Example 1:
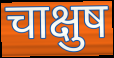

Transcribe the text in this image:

चाक्षुष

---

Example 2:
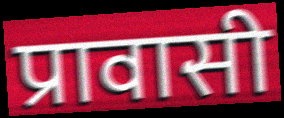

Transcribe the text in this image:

प्रावासी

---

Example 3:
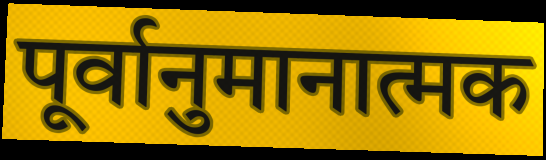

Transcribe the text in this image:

पूर्वानुमानात्मक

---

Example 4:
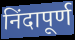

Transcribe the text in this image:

निंदापूर्ण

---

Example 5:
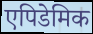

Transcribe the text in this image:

एपिडेमिक